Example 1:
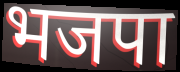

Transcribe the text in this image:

भजपा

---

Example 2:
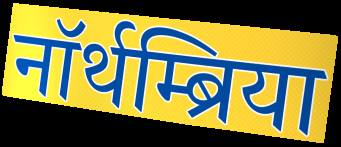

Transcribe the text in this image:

नॉर्थम्ब्रिया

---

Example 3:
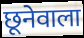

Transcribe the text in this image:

छूनेवाला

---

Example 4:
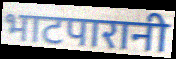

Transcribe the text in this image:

भाटपारानी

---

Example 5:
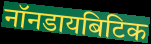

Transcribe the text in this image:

नॉनडायबिटिक